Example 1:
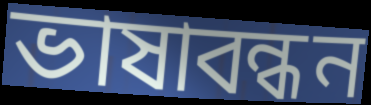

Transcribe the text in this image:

ভাষাবন্ধন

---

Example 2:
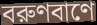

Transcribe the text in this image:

বরুণবাণে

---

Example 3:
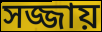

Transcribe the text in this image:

সজ্জায়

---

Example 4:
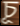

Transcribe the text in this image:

চূ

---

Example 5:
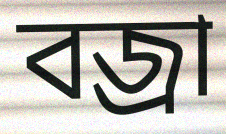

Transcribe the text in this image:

বজ্রা